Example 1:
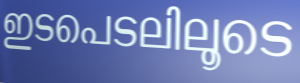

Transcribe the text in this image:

ഇടപെടലിലൂടെ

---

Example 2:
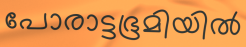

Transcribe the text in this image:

പോരാട്ടഭൂമിയിൽ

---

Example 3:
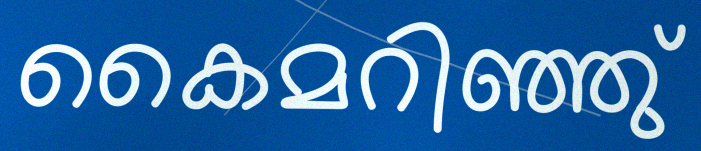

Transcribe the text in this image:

കൈമറിഞ്ഞു്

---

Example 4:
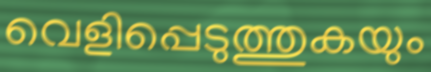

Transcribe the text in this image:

വെളിപ്പെടുത്തുകയും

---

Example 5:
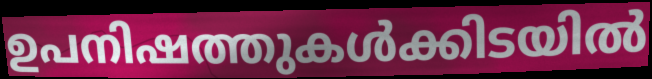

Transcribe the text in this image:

ഉപനിഷത്തുകൾക്കിടയിൽ